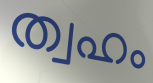
ത്വഹം